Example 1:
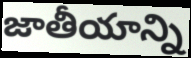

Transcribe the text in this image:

జాతీయాన్ని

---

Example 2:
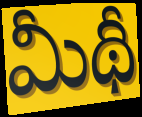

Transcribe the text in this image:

మీథీ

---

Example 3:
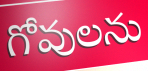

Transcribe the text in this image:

గోవులను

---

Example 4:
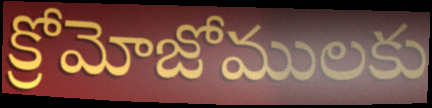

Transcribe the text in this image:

క్రోమోజోములకు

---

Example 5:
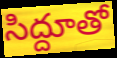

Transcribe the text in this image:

సిద్దూతో